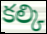
కల్కి